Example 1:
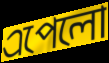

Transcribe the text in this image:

এপেলো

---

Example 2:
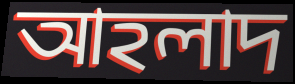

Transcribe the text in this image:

আহলাদ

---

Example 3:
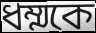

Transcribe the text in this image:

ধম্মকে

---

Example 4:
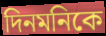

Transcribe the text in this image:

দিনমনিকে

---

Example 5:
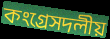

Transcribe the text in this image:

কংগ্রেসদলীয়